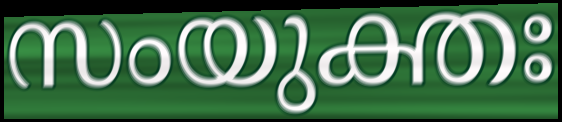
സംയുക്തഃ